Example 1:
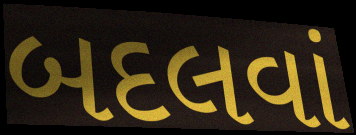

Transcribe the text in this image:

બદલવાં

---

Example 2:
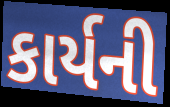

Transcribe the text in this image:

કાર્યની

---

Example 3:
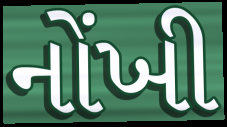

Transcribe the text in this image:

નોંખી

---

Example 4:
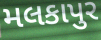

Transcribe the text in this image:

મલકાપુર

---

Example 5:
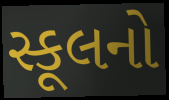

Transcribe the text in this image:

સ્કૂલનો